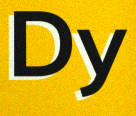
Dy